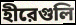
হীরেগুলি